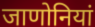
जाणोनियां